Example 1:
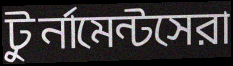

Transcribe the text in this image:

টুর্নামেন্টসেরা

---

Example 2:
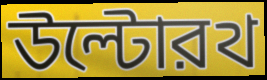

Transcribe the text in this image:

উল্টোরথ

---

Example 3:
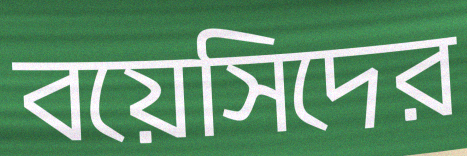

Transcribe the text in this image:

বয়েসিদের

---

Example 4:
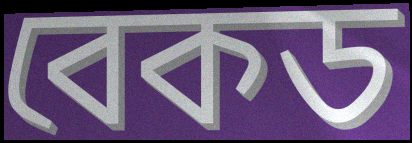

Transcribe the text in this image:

বেকড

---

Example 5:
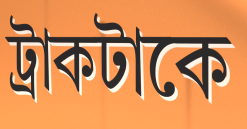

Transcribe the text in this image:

ট্রাকটাকে